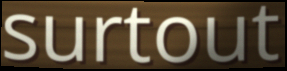
surtout